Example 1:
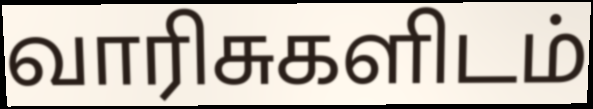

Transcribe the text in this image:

வாரிசுகளிடம்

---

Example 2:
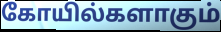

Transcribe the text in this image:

கோயில்களாகும்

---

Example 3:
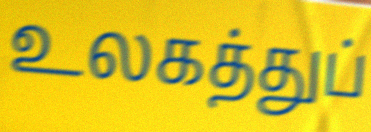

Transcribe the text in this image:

உலகத்துப்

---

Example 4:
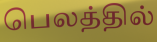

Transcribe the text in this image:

பெலத்தில்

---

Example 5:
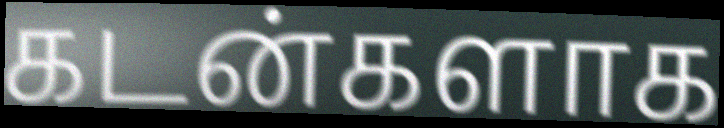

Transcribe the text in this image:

கடன்களாக